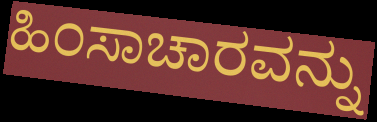
ಹಿಂಸಾಚಾರವನ್ನು